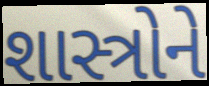
શાસ્ત્રોને